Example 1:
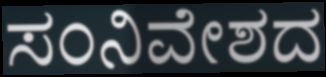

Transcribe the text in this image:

ಸಂನಿವೇಶದ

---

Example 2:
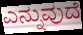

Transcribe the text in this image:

ಎನ್ನುವುದೆ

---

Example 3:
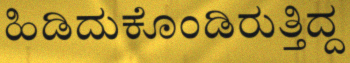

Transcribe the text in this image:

ಹಿಡಿದುಕೊಂಡಿರುತ್ತಿದ್ದ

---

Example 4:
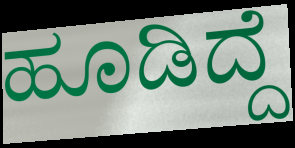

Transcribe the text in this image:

ಹೂಡಿದ್ದೆ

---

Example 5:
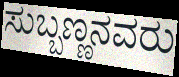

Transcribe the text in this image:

ಸುಬ್ಬಣ್ಣನವರು